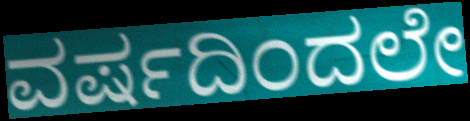
ವರ್ಷದಿಂದಲೇ